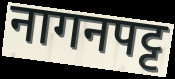
नागनपट्ट